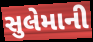
સુલેમાની